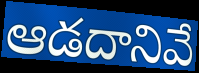
ఆడదానివే